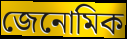
জেনোমিক